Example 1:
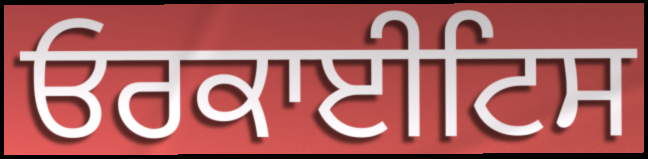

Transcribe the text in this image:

ਓਰਕਾਈਟਿਸ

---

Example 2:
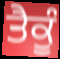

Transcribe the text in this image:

ਤੈਕੂੰ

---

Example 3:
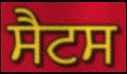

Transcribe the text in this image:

ਸੈਟਸ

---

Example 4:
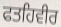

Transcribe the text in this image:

ਫਤਹਿਵੀਰ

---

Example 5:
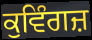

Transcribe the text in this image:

ਕੁਵਿੰਗਜ਼